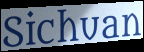
Sichuan